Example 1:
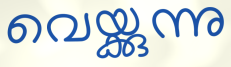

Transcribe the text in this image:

വെയ്ക്കുന്നു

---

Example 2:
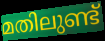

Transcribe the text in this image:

മതിലുണ്ട്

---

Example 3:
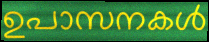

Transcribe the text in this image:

ഉപാസനകൾ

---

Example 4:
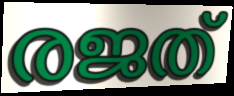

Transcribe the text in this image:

രജത്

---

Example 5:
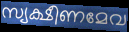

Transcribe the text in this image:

സ്യക്ഷീണമേവ